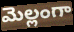
మెల్లంగా